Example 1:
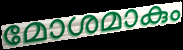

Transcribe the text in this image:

മോശമാകും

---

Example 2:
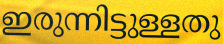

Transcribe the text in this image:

ഇരുന്നിട്ടുള്ളതു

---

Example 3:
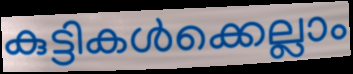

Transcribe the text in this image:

കുട്ടികൾക്കെല്ലാം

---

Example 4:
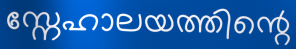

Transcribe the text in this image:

സ്നേഹാലയത്തിന്റെ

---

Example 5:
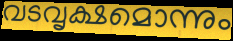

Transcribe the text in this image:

വടവൃക്ഷമൊന്നും